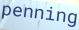
penning